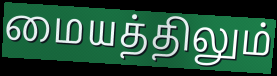
மையத்திலும்